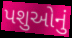
પશુઓનું